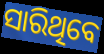
ସାରିଥିବେ